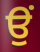
ਉਂ